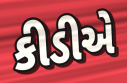
કીડીએ